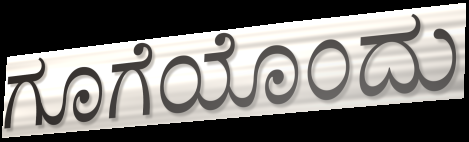
ಗೂಗೆಯೊಂದು